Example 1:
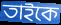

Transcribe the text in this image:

তাইকে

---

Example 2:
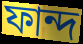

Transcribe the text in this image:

ফান্দ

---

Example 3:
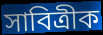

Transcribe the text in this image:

সাবিত্ৰীক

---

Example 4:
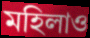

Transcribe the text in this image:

মহিলাও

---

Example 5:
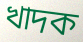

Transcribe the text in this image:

খাদক